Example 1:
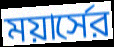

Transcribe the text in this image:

ময়ার্সের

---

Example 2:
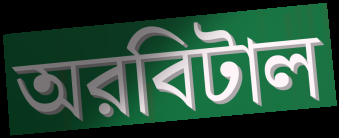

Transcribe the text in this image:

অরবিটাল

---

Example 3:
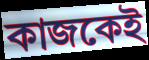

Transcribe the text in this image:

কাজকেই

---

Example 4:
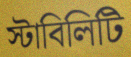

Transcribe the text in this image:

স্টাবিলিটি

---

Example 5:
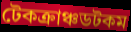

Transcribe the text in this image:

টেকক্রাঞ্চডটকম